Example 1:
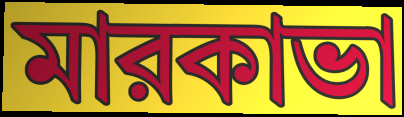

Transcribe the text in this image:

মারকাভা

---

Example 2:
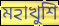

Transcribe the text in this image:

মহাখুশি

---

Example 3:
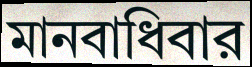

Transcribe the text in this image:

মানবাধিবার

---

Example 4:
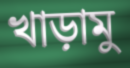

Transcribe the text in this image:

খাড়ামু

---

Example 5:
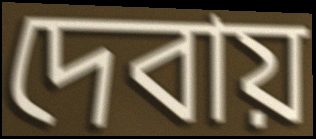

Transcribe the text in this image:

দেবায়